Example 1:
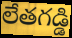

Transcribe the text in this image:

లేతగడ్డి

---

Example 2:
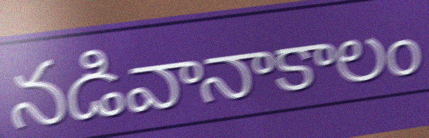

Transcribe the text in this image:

నడివానాకాలం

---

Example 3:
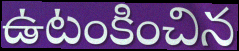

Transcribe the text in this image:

ఉటంకించిన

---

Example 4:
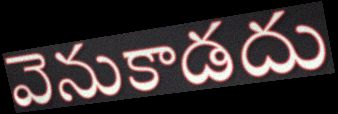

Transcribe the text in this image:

వెనుకాడదు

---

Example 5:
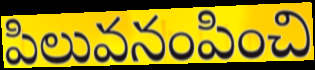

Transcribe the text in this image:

పిలువనంపించి